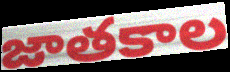
జాతకాల